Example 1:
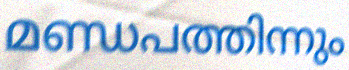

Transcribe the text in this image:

മണ്ഡപത്തിന്നും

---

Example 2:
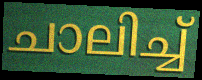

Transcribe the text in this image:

ചാലിച്ച്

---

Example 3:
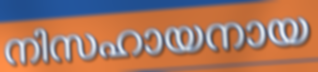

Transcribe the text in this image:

നിസഹായനായ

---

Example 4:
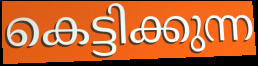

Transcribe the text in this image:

കെട്ടിക്കുന്ന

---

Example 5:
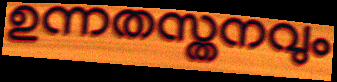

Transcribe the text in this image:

ഉന്നതസ്തനവും